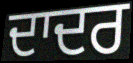
ਦਾਦਰ